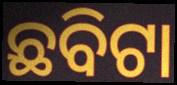
ଛବିଟା